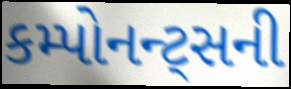
કમ્પોનન્ટ્સની